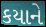
કયાને